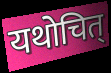
यथोचित्